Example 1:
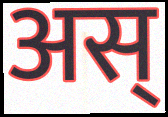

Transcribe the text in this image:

अस्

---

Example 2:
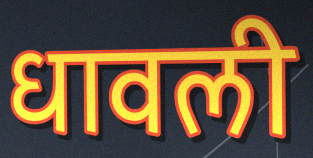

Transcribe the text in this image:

धावली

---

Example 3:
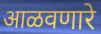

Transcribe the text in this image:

आळवणारे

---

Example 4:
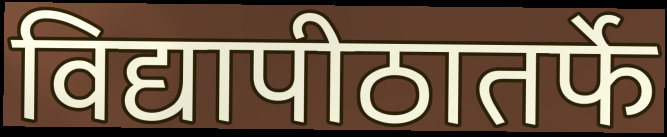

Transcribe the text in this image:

विद्यापीठातर्फे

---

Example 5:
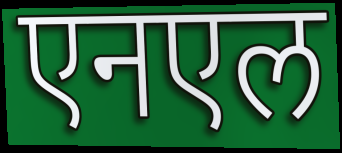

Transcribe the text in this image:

एनएल